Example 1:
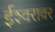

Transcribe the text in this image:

ईश्‍वरावर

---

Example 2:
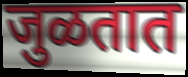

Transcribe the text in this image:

जुळतात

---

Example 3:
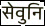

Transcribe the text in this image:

सेवुनि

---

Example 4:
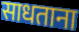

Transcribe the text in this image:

साधताना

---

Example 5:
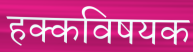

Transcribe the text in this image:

हक्कविषयक